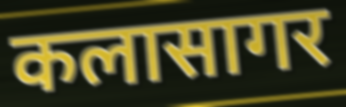
कलासागर